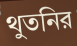
থুতনির